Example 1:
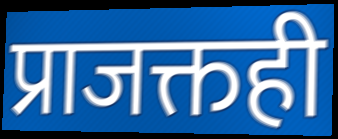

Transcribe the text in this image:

प्राजक्तही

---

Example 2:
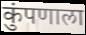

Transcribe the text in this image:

कुंपणाला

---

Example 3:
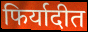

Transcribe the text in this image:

फिर्यादीत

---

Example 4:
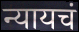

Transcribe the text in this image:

न्यायचं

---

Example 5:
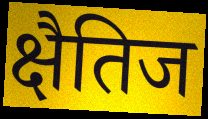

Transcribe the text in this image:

क्षैतिज